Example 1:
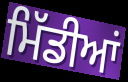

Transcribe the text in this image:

ਮਿੱਡੀਆਂ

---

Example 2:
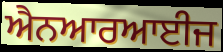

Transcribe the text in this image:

ਐਨਆਰਆਈਜ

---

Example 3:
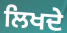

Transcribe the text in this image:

ਲਿਖਦੇ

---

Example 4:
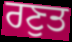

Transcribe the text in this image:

ਰਣੁਤ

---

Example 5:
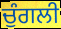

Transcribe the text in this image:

ਚੁੰਗਲੀ